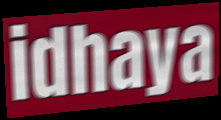
idhaya